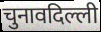
चुनावदिल्ली